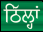
ਠਿੱਲ੍ਹਾਂ